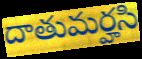
దాతుమర్హసి